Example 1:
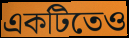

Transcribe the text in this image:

একটিতেও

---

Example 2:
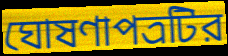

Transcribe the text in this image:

ঘোষণাপত্রটির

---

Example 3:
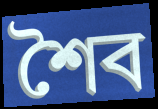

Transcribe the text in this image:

শৈব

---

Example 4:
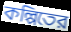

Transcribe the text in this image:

কল্পিতের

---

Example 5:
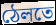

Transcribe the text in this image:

ঠেলতে